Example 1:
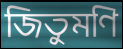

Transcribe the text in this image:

জিতুমণি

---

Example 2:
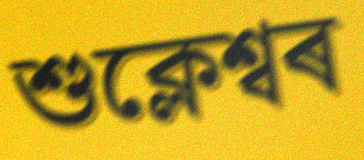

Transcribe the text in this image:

শুক্লেশ্বৰ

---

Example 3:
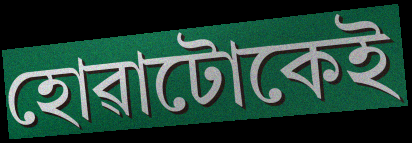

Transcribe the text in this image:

হোৱাটোকেই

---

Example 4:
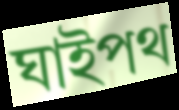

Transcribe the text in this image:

ঘাইপথ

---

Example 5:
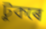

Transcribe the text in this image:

টুকৰে